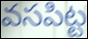
వసపిట్ట